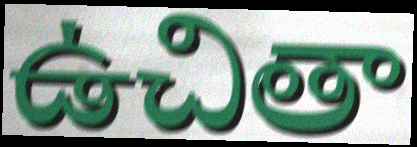
ఉచితా